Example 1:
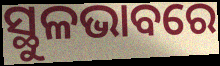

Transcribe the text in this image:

ସ୍ଥୁଳଭାବରେ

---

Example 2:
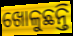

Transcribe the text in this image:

ଖୋଳୁଛନ୍ତି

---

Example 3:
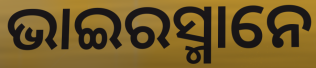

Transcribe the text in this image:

ଭାଇରସ୍ମାନେ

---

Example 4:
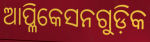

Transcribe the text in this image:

ଆପ୍ଳିକେସନଗୁଡ଼ିକ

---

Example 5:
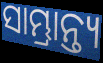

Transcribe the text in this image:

ସାମ୍ଭ୍ରାନ୍ତ୍ୟ